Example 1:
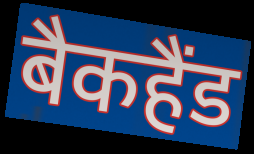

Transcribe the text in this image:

बैकहैंड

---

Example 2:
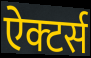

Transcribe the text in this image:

ऐक्‍टर्स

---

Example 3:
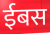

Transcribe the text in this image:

ईबस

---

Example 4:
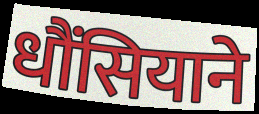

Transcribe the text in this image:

धौंसियाने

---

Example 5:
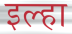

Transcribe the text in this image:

इल्हा